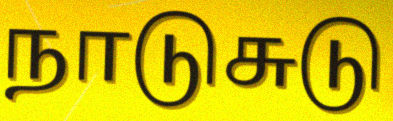
நாடுசுடு